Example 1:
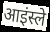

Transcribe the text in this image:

आइंस्ले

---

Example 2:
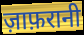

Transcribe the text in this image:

ज़ाफ़रानी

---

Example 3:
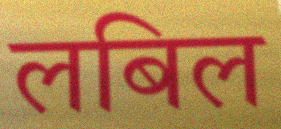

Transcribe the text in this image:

लबिल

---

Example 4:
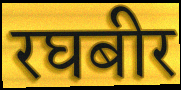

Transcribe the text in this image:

रघबीर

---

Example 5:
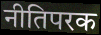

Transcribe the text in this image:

नीतिपरक